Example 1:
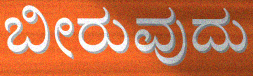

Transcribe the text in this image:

ಬೀರುವುದು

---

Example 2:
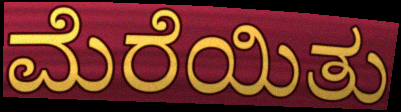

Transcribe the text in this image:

ಮೆರೆಯಿತು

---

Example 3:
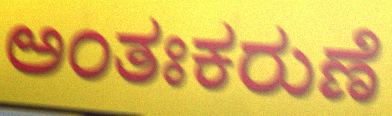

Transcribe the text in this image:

ಅಂತಃಕರುಣೆ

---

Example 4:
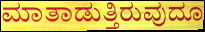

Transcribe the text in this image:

ಮಾತಾಡುತ್ತಿರುವುದೂ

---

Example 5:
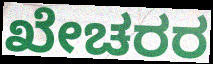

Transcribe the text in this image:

ಖೇಚರರ